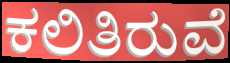
ಕಲಿತಿರುವೆ